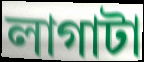
লাগাটা